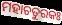
ମହାଚତୁରକଃ